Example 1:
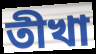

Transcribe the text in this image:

তীখা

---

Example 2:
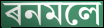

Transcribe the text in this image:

ৰনমলে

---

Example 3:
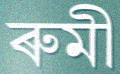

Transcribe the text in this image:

ৰুমী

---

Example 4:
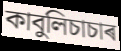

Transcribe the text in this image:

কাবুলিচাচাৰ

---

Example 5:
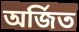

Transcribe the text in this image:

অৰ্জিত